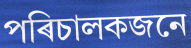
পৰিচালকজনে